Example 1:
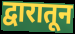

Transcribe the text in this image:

द्वारातून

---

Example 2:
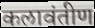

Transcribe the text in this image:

कलावंतीण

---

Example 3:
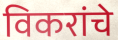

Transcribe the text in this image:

विकरांचे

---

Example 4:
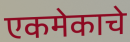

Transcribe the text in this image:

एकमेकाचे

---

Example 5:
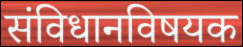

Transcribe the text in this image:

संविधानविषयक